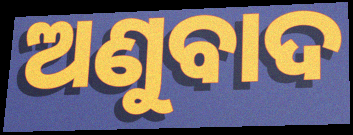
ଅଣୁବାଦ